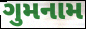
ગુમનામ